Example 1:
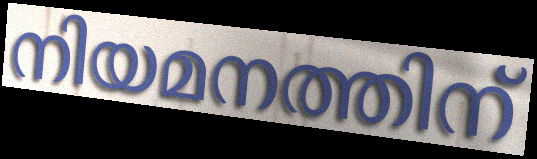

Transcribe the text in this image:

നിയമനത്തിന്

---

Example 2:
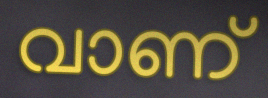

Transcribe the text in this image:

വാണ്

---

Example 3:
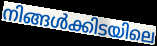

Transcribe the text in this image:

നിങ്ങൾക്കിടയിലെ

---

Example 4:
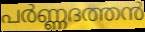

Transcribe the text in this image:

പർണ്ണദത്തൻ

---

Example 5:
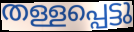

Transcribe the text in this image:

തള്ളപ്പെട്ടു